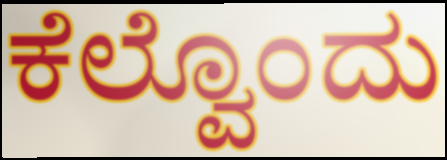
ಕೆಲ್ವೊಂದು